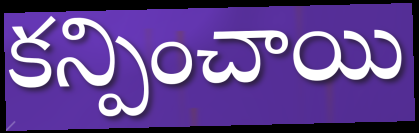
కన్పించాయి